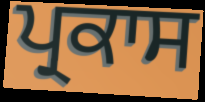
ਪ੍ਰਕਾਸ